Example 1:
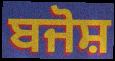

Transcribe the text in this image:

ਬਜੋਸ਼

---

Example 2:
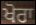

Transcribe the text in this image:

ਖੋਰਾ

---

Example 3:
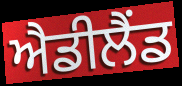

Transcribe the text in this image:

ਐਡੀਲੈਂਡ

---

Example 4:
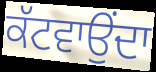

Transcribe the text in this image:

ਕੱਟਵਾਉਂਦਾ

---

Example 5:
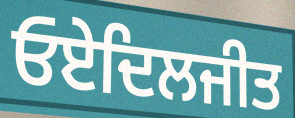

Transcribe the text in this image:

ਓਏਦਿਲਜੀਤ